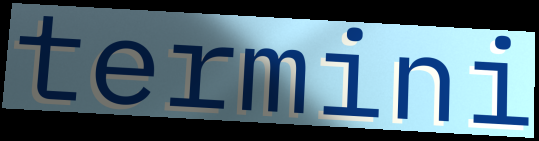
termini